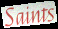
Saints